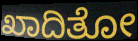
ಖಾದಿತೋ